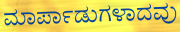
ಮಾರ್ಪಾಡುಗಳಾದವು